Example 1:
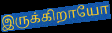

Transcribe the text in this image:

இருக்கிறாயோ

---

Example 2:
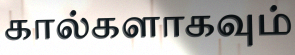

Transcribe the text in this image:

கால்களாகவும்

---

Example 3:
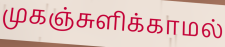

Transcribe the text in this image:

முகஞ்சுளிக்காமல்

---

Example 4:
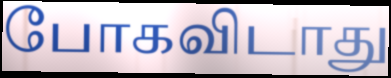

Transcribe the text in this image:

போகவிடாது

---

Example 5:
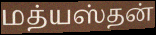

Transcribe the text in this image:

மத்யஸ்தன்